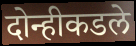
दोन्हीकडले